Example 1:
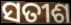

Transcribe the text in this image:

ସତୀଶ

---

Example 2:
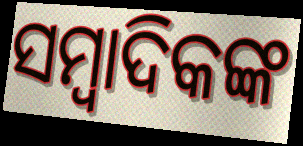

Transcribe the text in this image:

ସମ୍ୱାଦିକଙ୍କ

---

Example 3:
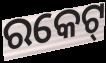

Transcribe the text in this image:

ରକେଟ୍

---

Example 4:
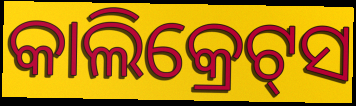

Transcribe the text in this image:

କାଲିକ୍ରେଟ୍‍ସ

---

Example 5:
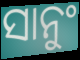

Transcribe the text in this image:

ସାନୁଂ